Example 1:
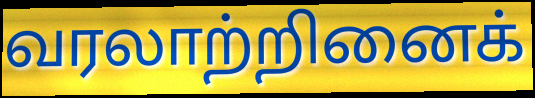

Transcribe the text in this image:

வரலாற்றினைக்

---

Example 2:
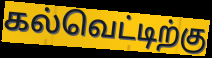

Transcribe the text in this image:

கல்வெட்டிற்கு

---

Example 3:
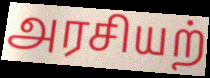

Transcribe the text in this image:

அரசியற்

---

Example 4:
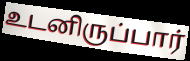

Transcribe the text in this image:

உடனிருப்பார்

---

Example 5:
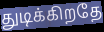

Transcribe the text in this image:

துடிக்கிறதே